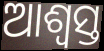
ଆଶ୍ଵସ୍ତ